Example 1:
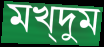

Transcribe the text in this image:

মখ্দুম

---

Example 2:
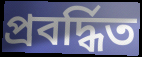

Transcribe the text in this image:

প্রবর্দ্ধিত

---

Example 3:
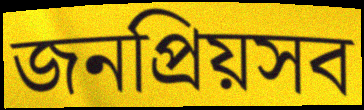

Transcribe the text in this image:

জনপ্রিয়সব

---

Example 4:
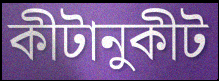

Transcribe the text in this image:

কীটানুকীট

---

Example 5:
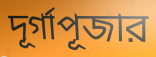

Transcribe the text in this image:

দূর্গাপূজার